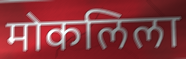
मोकलिला